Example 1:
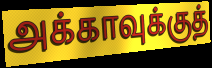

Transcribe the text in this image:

அக்காவுக்குத்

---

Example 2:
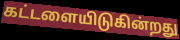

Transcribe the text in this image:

கட்டளையிடுகின்றது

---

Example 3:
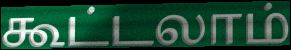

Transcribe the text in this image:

கூட்டலாம்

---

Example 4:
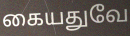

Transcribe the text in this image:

கையதுவே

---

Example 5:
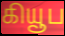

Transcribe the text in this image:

கியூப